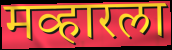
मव्हारला